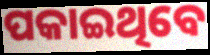
ପକାଇଥିବେ